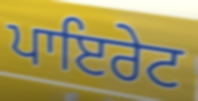
ਪਾਇਰੇਟ